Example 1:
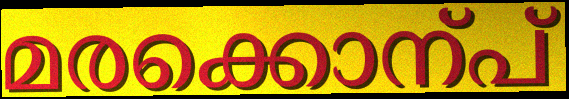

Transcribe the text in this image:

മരക്കൊന്പ്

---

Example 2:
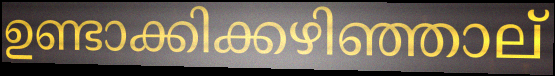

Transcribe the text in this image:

ഉണ്ടാക്കിക്കഴിഞ്ഞാല്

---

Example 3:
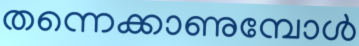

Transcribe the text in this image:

തന്നെക്കാണുമ്പോൾ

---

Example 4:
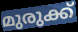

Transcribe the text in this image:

മുരുക്ക്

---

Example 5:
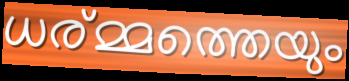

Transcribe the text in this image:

ധര്മ്മത്തെയും